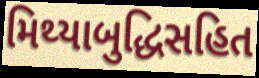
મિથ્યાબુદ્ધિસહિત